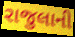
રાજુલાની